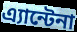
এ্যান্টেনা